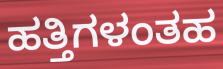
ಹತ್ತಿಗಳಂತಹ